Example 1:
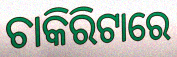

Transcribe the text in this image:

ଚାକିରିଟାରେ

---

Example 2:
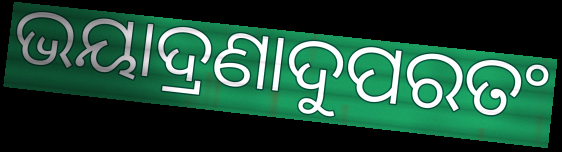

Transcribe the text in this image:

ଭୟାଦ୍ରଣାଦୁପରତଂ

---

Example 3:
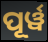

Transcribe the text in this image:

ପୂର୍ୱ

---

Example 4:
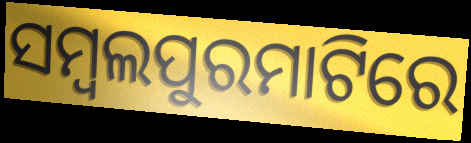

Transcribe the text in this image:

ସମ୍ବଲପୁରମାଟିରେ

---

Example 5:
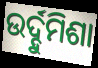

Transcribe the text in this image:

ଉର୍ଦ୍ଦୁମିଶା